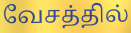
வேசத்தில்